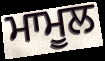
ਮਾਮੂਲ